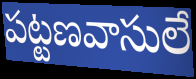
పట్టణవాసులే